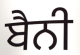
ਬੈਨੀ